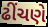
ઢીંચણે